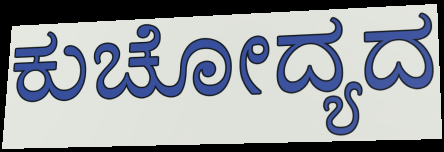
ಕುಚೋದ್ಯದ